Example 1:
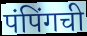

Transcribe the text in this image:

पंपिंगची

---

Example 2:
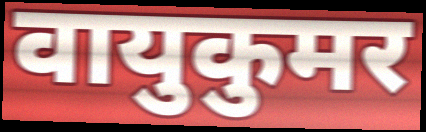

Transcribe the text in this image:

वायुकुमर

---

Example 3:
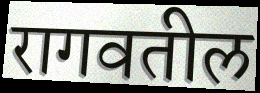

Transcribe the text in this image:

रागवतील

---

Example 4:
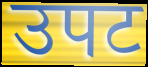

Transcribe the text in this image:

उपट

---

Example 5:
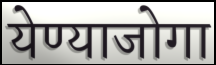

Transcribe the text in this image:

येण्याजोगा